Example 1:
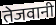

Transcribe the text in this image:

तेजवानी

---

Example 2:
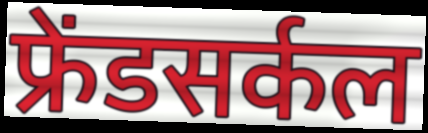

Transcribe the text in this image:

फ्रेंडसर्कल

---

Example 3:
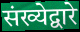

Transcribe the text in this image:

संख्येद्वारे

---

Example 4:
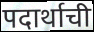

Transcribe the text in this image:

पदार्थाची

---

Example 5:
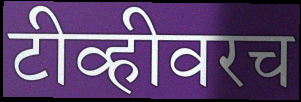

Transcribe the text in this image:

टीव्हीवरच